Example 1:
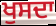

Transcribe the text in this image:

ਖੁਸਦਾ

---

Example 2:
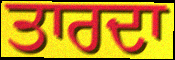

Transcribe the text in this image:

ਤਾਰਦਾ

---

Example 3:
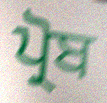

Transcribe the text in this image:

ਪ੍ਰੋਬ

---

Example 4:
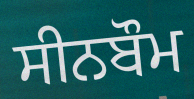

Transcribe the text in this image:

ਸੀਨਬੌਮ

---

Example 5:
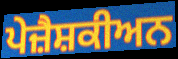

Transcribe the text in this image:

ਪੇਜ਼ੈਸ਼ਕੀਅਨ